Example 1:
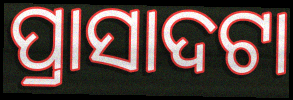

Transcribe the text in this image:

ପ୍ରାସାଦଟା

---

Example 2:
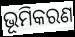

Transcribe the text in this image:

ଭୂମିକରଣ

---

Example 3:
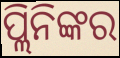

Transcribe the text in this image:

ପ୍ଲିନିଙ୍କର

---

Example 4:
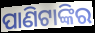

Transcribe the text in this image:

ପାଣିଟାଙ୍କିର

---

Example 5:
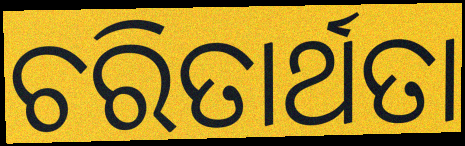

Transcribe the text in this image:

ଚରିତାର୍ଥତା